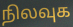
நிலவுக